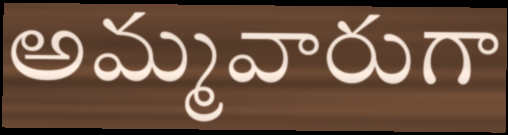
అమ్మవారుగా